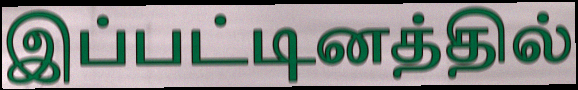
இப்பட்டினத்தில்